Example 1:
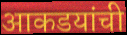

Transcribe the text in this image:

आकडयांची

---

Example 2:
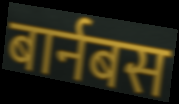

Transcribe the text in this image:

बार्नबस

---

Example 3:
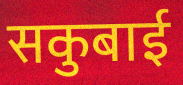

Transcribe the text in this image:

सकुबाई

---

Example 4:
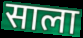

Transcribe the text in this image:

साला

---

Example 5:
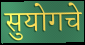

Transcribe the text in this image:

सुयोगचे